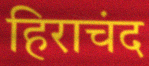
हिराचंद